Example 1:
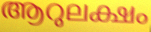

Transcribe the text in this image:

ആറുലക്ഷം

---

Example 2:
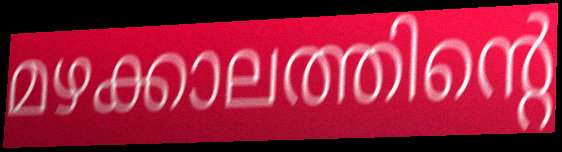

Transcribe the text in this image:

മഴക്കാലത്തിന്റെ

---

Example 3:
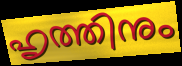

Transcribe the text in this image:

ഹൃത്തിനും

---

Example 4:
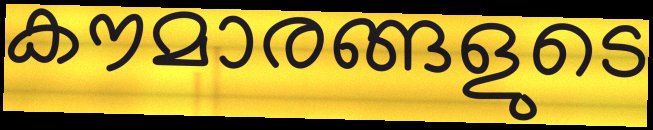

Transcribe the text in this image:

കൗമാരങ്ങളുടെ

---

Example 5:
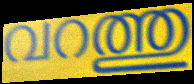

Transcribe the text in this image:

വറത്തു